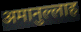
अमानुल्लाह